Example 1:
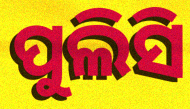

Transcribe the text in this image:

ପୁଲିସି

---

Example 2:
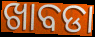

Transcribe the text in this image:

ଖାବଡା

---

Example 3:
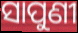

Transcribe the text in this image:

ସାପୁଣୀ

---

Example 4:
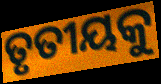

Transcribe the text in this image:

ତୃତୀୟକୁ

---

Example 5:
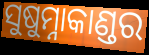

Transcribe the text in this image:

ସୁଷୁମ୍ନାକାଣ୍ଡର